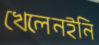
খেলেনইনি